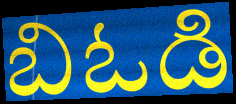
బిఓడి